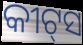
କୀଟ୍‌ସ